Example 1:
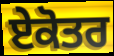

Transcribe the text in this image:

ਏਕੋਤਰ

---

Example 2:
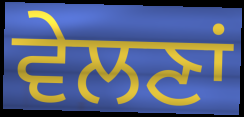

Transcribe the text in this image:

ਵੇਲਣਾਂ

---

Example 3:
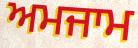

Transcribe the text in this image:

ਅਮਜਾਮ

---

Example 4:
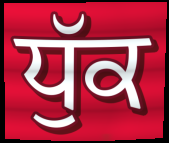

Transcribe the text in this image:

ਧੁੱਕ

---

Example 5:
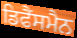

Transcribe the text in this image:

ਡਿਫੈਂਸਮੈਨ